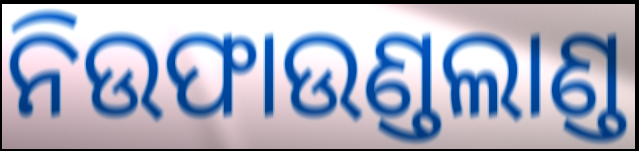
ନିଉଫାଉଣ୍ଡଲାଣ୍ଡ